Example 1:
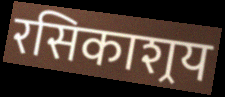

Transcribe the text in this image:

रसिकाश्रय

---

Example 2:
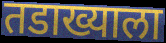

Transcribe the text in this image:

तडाख्याला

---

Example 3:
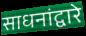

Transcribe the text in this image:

साधनांद्वारे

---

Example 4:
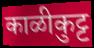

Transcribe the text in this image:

काळीकुट्ट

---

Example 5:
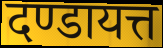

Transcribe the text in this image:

दण्डायत्त